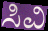
ಸಿವಿ